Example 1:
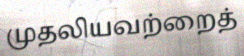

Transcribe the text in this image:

முதலியவற்றைத்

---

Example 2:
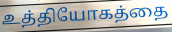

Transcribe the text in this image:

உத்தியோகத்தை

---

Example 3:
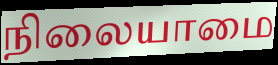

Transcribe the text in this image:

நிலையாமை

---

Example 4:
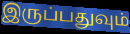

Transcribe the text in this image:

இருப்பதுவும்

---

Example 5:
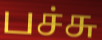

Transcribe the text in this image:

பச்சு